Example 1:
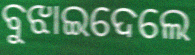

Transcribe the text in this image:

ବୁଝାଇଦେଲେ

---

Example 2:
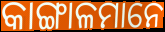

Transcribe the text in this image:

କାଙ୍ଗାଳମାନେ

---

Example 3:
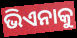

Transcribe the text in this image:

ଭିଏନାକୁ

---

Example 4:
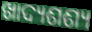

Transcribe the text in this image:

ଖାଦ୍ୟଶଶ୍ୟ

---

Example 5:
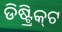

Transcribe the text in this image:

ଡିଷ୍ଟ୍ରିକ୍‌ଟ